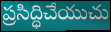
ప్రసిద్ధిచేయుచు